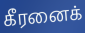
கீரனைக்